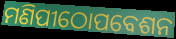
ମଣିପୀଠୋପବେଶନ